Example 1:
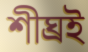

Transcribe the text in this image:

শীঘ্রই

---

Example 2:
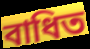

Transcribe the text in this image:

বাধিত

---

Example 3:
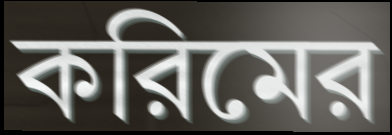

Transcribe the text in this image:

করিমের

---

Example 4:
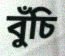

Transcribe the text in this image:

বুঁচি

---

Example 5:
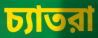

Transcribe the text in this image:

চ্যাতরা